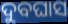
ଦୁବଘାସ